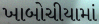
ખાબોચીયામાં